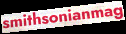
smithsonianmag